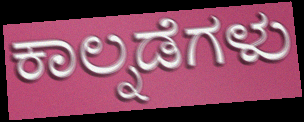
ಕಾಲ್ನಡೆಗಳು